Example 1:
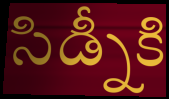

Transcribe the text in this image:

సిడ్నీకి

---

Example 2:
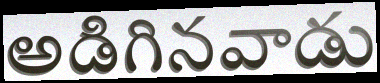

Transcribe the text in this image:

అడిగినవాడు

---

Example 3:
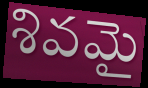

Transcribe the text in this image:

శివమై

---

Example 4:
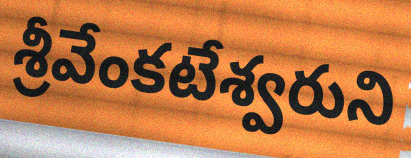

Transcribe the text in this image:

శ్రీవేంకటేశ్వరుని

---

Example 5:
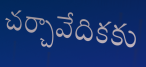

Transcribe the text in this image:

చర్చావేదికకు